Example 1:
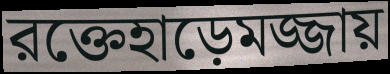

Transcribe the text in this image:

রক্তেহাড়েমজ্জায়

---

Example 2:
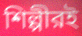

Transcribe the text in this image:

শিল্পীরই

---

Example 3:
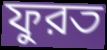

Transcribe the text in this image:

ফুরত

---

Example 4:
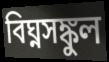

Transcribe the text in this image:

বিঘ্নসঙ্কুল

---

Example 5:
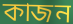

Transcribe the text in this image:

কাজন